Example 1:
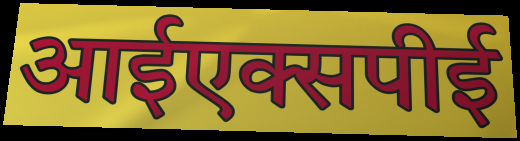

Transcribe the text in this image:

आईएक्सपीई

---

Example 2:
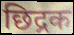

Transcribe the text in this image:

छिद्रक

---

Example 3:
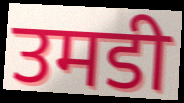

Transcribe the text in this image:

उमडी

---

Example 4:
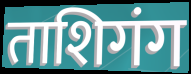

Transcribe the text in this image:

ताशिगंग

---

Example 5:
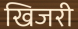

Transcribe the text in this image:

खिजरी